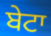
ਬੇਟਾ